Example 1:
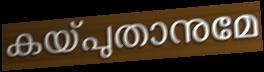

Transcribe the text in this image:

കയ്പുതാനുമേ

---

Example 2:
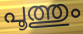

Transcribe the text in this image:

പൂത്തും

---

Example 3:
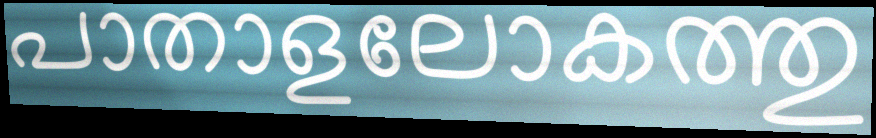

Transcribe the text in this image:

പാതാളലോകത്തു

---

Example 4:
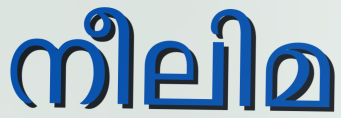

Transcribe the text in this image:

നീലിമ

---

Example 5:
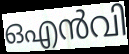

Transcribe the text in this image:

ഒഎൻവി